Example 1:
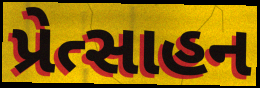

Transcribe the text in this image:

પ્રેત્સાહન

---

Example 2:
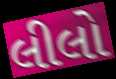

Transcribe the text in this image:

લીલો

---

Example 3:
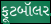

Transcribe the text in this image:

ફૂટબૉલર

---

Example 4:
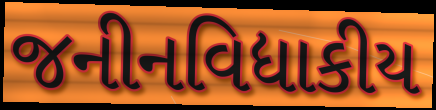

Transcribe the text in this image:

જનીનવિદ્યાકીય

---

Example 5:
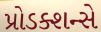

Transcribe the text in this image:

પ્રોડક્શન્સે